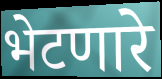
भेटणारे